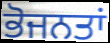
ਭੋਜਨਤਾਂ